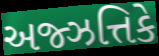
અજ્ઝત્તિકે